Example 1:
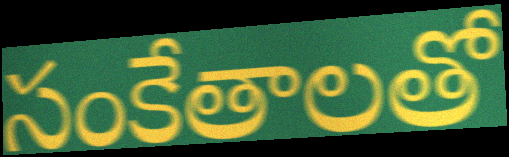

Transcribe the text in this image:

సంకేతాలతో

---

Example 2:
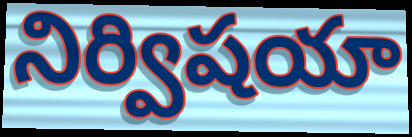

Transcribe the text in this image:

నిర్విషయా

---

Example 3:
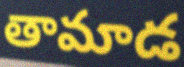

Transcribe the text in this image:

తామాడ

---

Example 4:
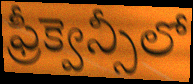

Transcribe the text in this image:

ఫ్రీక్వెన్సీలో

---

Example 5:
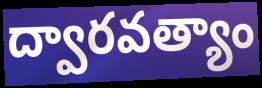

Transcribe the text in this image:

ద్వారవత్యాం